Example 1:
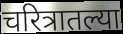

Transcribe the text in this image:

चरित्रातल्या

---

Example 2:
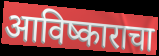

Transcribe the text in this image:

आविष्काराचा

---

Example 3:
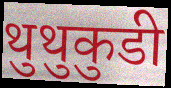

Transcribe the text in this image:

थुथुकुडी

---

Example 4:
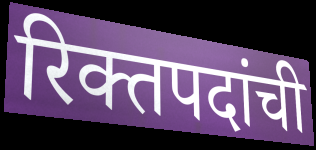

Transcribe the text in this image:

रिक्तपदांची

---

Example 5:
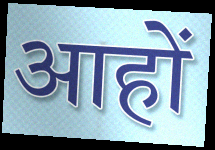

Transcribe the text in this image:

आहों